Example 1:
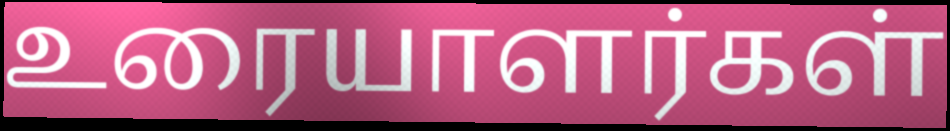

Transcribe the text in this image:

உரையாளர்கள்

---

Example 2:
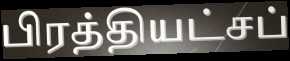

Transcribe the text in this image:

பிரத்தியட்சப்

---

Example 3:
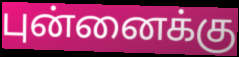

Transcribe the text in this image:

புன்னைக்கு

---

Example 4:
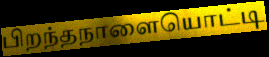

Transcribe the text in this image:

பிறந்தநாளையொட்டி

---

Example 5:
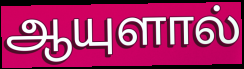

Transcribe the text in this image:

ஆயுளால்